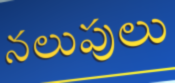
నలుపులు